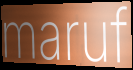
maruf